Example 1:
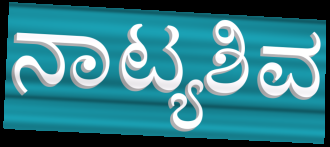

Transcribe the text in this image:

ನಾಟ್ಯಶಿವ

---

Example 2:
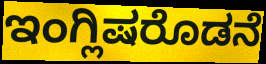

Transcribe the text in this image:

ಇಂಗ್ಲಿಷರೊಡನೆ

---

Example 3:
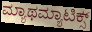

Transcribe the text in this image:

ಮ್ಯಾಥಮ್ಯಾಟಿಕ್ಸ್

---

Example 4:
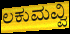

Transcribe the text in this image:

ಲಕುಮವ್ವಿ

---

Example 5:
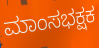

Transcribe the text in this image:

ಮಾಂಸಭಕ್ಷಕ